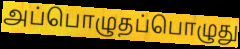
அப்பொழுதப்பொழுது